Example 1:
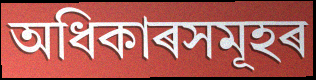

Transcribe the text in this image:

অধিকাৰসমূহৰ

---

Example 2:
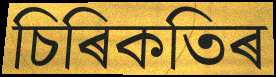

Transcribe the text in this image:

চিৰিকতিৰ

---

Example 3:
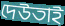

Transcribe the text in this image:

দেউতাই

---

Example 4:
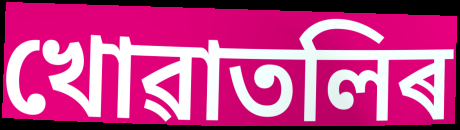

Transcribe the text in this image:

খোৱাতলিৰ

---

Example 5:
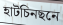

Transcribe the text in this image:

হাটচিনছনে